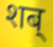
शब्